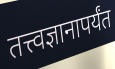
तत्त्वज्ञानापर्यंत